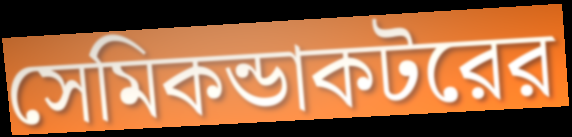
সেমিকন্ডাকটরের